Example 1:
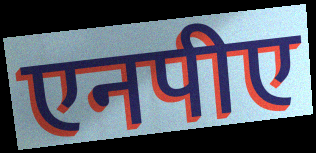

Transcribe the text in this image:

एनपीए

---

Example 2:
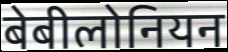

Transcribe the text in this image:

बेबीलोनियन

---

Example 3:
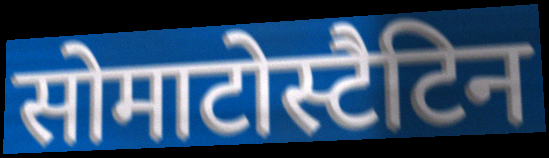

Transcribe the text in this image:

सोमाटोस्टैटिन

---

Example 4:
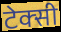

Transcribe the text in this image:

टेक्‍सी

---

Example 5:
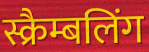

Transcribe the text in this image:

स्क्रैम्बलिंग